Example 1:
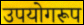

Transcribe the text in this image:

उपयोगरूप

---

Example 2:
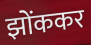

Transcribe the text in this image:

झोंककर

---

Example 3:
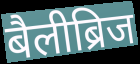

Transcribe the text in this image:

बैलीब्रिज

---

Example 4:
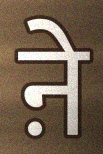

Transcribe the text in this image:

ऩे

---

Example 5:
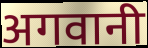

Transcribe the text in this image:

अगवानी